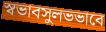
স্বভাবসুলভভাবে